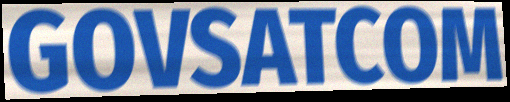
GOVSATCOM